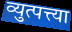
व्युत्पत्त्या